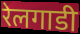
रेलगाडी